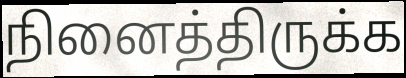
நினைத்திருக்க